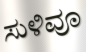
ಸುಳಿವೂ